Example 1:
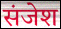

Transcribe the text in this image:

संजेश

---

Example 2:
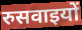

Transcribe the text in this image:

रुसवाइयों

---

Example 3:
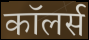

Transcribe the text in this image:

कॉलर्स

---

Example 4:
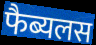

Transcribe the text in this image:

फैब्यलस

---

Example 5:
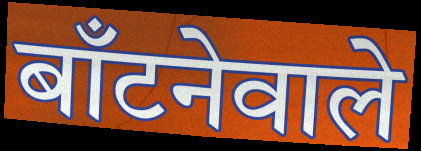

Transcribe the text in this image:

बाँटनेवाले